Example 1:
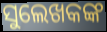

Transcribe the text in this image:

ସୁଲେଖକଙ୍କ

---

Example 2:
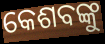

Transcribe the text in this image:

କେଶବଙ୍କୁ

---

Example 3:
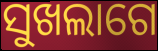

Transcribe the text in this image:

ସୁଖଲାଗେ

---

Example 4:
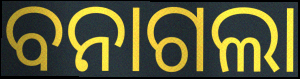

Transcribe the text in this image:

ବନାଗଲା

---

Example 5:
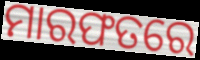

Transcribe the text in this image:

ମାରଫତରେ